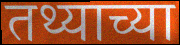
तथ्याच्या